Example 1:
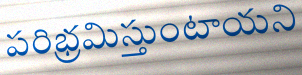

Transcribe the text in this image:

పరిభ్రమిస్తుంటాయని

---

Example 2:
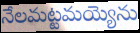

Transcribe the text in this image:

నేలమట్టమయ్యెను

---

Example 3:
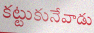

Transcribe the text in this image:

కట్టుకునేవాడు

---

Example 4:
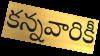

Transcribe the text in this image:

కన్నవారికీ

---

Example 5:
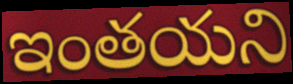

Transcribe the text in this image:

ఇంతయని